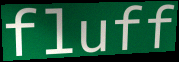
fluff